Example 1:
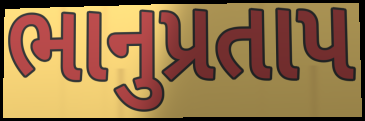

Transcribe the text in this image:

ભાનુપ્રતાપ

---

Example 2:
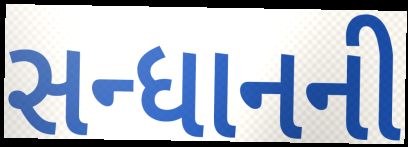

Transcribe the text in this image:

સન્ધાનની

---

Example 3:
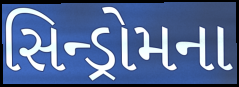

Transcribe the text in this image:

સિન્ડ્રોમના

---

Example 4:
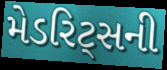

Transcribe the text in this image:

મેડરિટ્સની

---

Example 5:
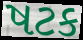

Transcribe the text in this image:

ષટક